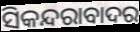
ସିକନ୍ଦରାବାଦର